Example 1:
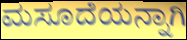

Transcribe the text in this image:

ಮಸೂದೆಯನ್ನಾಗಿ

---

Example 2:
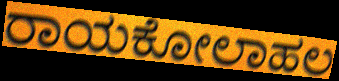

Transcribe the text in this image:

ರಾಯಕೋಲಾಹಲ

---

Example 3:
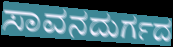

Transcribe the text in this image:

ಸಾವನದುರ್ಗದ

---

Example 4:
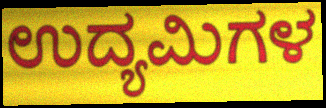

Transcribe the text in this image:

ಉದ್ಯಮಿಗಳ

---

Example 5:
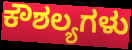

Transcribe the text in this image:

ಕೌಶಲ್ಯಗಳು